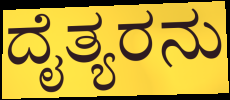
ದೈತ್ಯರನು